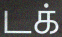
டக்